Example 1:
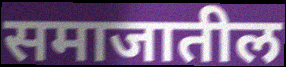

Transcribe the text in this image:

समाजातील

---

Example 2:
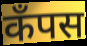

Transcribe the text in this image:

कॅंपस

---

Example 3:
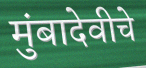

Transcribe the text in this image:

मुंबादेवीचे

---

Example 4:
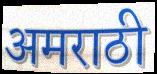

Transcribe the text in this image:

अमराठी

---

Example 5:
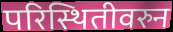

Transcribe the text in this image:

परिस्थितीवरुन